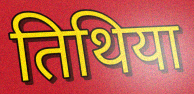
तिथिया